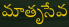
మాతృసేవ